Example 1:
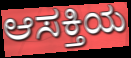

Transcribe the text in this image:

ಆಸಕ್ತಿಯ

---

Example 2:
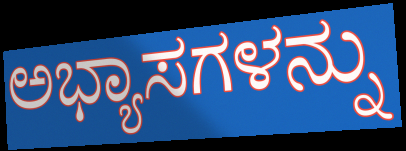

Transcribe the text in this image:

ಅಭ್ಯಾಸಗಳನ್ನು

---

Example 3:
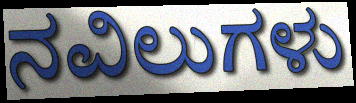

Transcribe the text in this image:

ನವಿಲುಗಳು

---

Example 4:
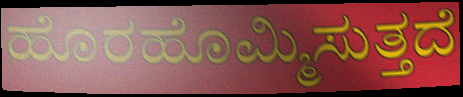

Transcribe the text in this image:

ಹೊರಹೊಮ್ಮಿಸುತ್ತದೆ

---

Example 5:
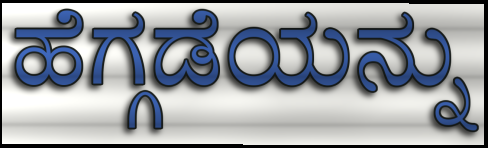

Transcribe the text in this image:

ಹೆಗ್ಗಡೆಯನ್ನು